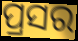
ପ୍ରସର